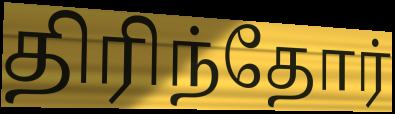
திரிந்தோர்